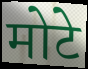
मोटे